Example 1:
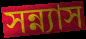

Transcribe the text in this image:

সন্ন্যাস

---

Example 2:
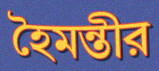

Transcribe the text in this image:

হৈমন্তীর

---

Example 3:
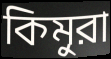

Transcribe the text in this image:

কিমুরা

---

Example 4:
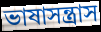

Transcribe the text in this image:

ভাষাসন্ত্রাস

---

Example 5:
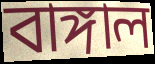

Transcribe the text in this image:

বাঙ্গাল